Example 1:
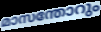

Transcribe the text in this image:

മാസന്തോറും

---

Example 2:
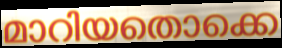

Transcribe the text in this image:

മാറിയതൊക്കെ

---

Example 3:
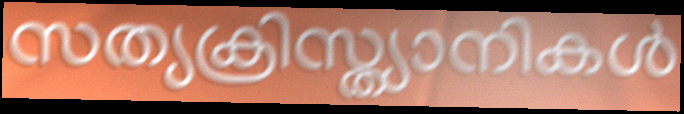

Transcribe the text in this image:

സത്യക്രിസ്ത്യാനികൾ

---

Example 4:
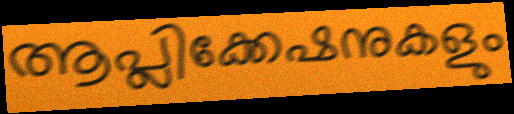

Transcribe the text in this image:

ആപ്ലിക്കേഷനുകളും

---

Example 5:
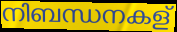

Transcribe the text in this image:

നിബന്ധനകള്